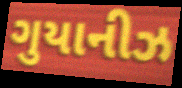
ગુયાનીઝ